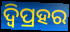
ଦ୍ବିପ୍ରହର